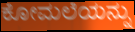
ಕೋಮಲೆಯನ್ನು